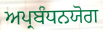
ਅਪ੍ਰਬੰਧਨਯੋਗ